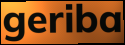
geriba